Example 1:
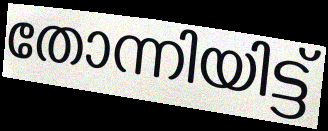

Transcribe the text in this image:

തോന്നിയിട്ട്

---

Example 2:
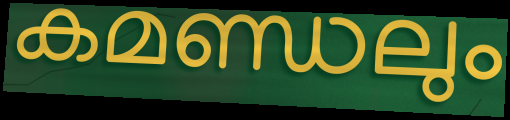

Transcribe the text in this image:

കമണ്ഡലും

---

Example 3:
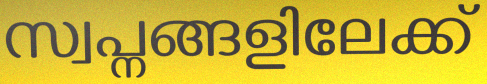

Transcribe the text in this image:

സ്വപ്നങ്ങളിലേക്ക്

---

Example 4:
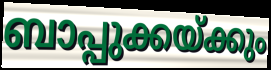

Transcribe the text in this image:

ബാപ്പുക്കയ്ക്കും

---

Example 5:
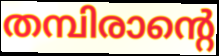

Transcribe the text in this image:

തമ്പിരാന്റെ